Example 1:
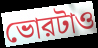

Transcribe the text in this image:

ভোরটাও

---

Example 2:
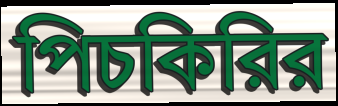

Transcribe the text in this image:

পিচকিরির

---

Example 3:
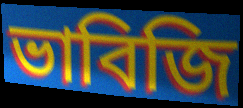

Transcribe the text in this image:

ভাবিজি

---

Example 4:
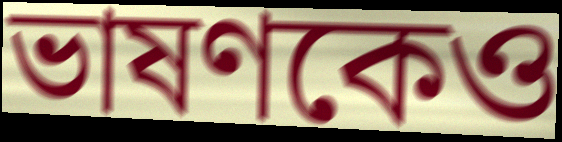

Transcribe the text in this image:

ভাষণকেও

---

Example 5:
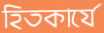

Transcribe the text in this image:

হিতকার্যে